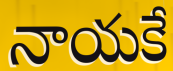
నాయకే